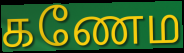
கணேம